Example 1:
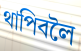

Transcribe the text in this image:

থাপিবলৈ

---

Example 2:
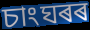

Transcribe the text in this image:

চাংঘৰৰ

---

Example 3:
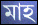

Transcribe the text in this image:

মাহ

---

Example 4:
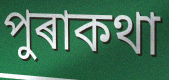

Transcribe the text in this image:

পুৰাকথা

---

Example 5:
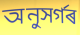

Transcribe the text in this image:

অনুসৰ্গৰ